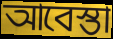
আবেস্তা